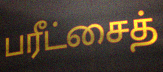
பரீட்சைத்